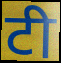
टी